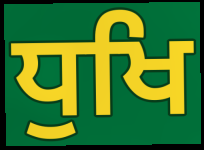
ਧੁਖਿ